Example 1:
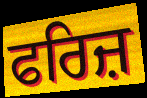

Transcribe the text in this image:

ਫਰਿਜ਼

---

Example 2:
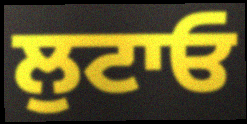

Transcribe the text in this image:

ਲੁਟਾਓ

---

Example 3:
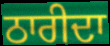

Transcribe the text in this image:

ਠਾਰੀਦਾ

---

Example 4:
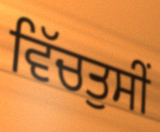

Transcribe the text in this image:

ਵਿੱਚਤੁਸੀਂ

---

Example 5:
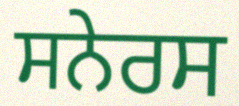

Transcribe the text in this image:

ਸਨੇਰਸ